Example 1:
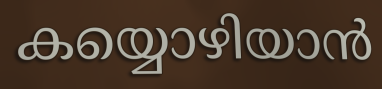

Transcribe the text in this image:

കയ്യൊഴിയാൻ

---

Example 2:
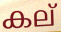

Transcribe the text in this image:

കല്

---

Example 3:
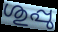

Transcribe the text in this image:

ശുപ്പു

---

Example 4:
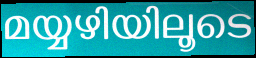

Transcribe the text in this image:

മയ്യഴിയിലൂടെ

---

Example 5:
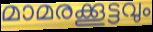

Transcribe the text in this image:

മാമരക്കൂട്ടവും